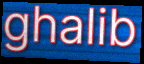
ghalib